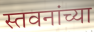
स्तवनांच्या